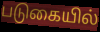
படுகையில்